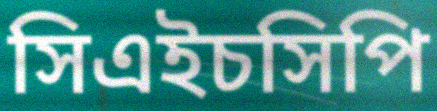
সিএইচসিপি